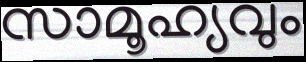
സാമൂഹ്യവും